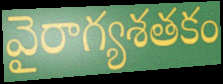
వైరాగ్యశతకం